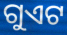
ଗୁଏଟ